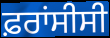
ਫ਼ਰਾਂਸੀਸੀ